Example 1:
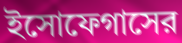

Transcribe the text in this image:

ইসোফেগাসের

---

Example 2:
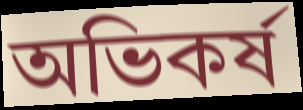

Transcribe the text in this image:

অভিকর্ষ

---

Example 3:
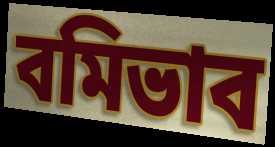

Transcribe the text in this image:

বমিভাব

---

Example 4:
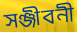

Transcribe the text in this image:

সঞ্জীবনী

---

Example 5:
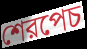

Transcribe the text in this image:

শেরপেচ